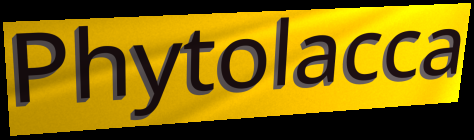
Phytolacca